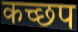
कच्छप